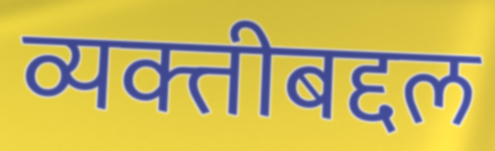
व्यक्तीबद्दल